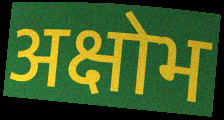
अक्षोभ